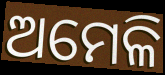
ଅମେଳି